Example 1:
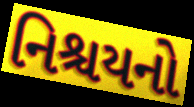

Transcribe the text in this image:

નિશ્ચયનો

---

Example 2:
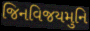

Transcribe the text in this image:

જિનવિજયમુનિ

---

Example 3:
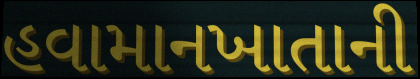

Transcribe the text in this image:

હવામાનખાતાની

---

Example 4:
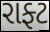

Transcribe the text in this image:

રાફ્ટ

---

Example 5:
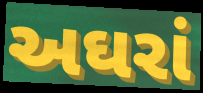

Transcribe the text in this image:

અઘરાં